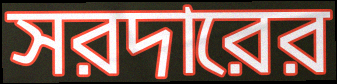
সরদারের